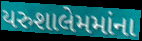
યરુશાલેમમાંના